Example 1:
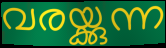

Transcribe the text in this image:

വരയ്ക്കുന്ന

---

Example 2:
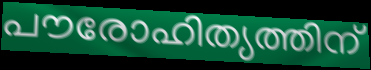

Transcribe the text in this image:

പൗരോഹിത്യത്തിന്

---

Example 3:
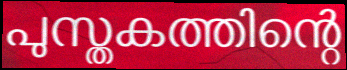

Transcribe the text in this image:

പുസ്തകത്തിന്റെ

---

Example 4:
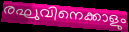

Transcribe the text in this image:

രഘുവിനെക്കാളും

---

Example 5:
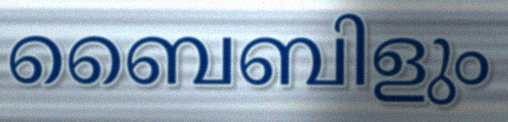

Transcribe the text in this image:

ബൈബിളും